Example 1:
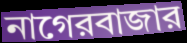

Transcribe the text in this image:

নাগেরবাজার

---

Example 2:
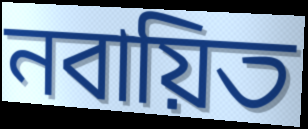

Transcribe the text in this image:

নবায়িত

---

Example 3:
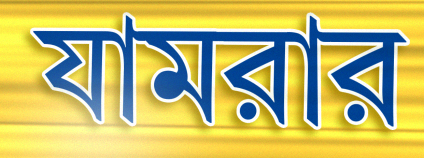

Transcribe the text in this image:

যামরার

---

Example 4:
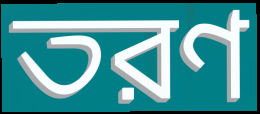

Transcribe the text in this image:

তরণ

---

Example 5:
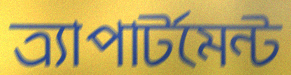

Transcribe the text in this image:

ত্র্যাপার্টমেন্ট